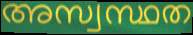
അസ്വസ്ഥത